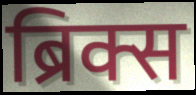
ब्रिक्स